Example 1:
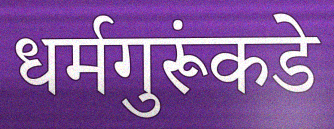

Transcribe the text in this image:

धर्मगुरूंकडे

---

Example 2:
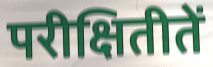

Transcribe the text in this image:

परीक्षितीतें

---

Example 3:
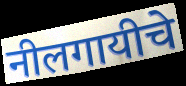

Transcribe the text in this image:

नीलगायीचे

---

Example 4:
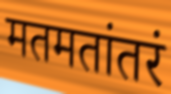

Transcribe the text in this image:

मतमतांतरं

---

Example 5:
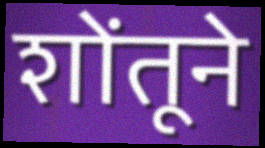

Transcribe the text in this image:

शोंतूने